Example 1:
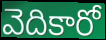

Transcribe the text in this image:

వెదికారో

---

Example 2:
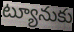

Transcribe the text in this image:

ట్యూనుకు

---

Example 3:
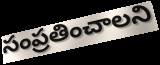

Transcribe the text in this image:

సంప్రతించాలని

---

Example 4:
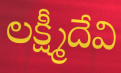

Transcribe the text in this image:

లక్ష్మీదేవి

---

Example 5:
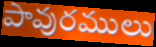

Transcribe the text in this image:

పావురములు